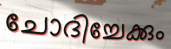
ചോദിച്ചേക്കും